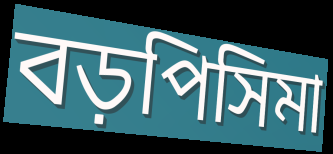
বড়পিসিমা